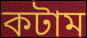
কটাম